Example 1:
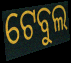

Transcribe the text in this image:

ଟେବୁଲ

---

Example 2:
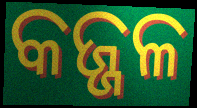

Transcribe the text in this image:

କଜ୍ଜଳ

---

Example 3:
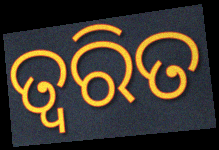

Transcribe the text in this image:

ତ୍ଵରିତ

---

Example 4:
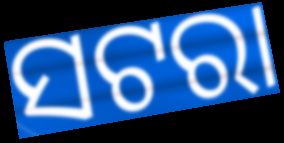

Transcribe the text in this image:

ସଟରା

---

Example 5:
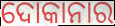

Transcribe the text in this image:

ଦୋକାନାର